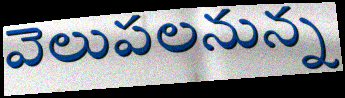
వెలుపలనున్న